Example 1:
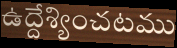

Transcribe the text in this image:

ఉద్దేశ్యించటము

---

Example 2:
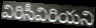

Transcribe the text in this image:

విరిసీవిరియని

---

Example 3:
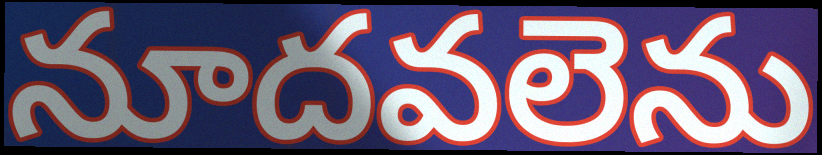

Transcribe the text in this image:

నూదవలెను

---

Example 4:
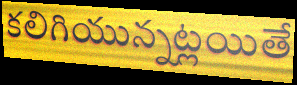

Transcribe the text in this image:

కలిగియున్నట్లయితే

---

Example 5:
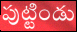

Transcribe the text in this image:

పుట్టిండు